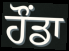
ਹੌਂਡਾ